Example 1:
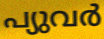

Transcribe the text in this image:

പ്യുവർ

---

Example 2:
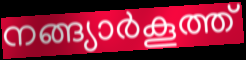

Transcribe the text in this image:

നങ്ങ്യാർകൂത്ത്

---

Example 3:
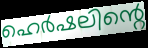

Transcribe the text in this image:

ഹെർഷലിന്റെ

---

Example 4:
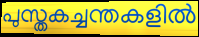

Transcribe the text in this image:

പുസ്തകച്ചന്തകളിൽ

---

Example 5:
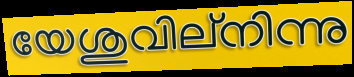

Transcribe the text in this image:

യേശുവില്നിന്നു